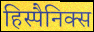
हिस्पैनिक्स